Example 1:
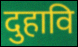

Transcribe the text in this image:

दुहावि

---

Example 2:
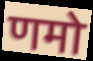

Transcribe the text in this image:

णमो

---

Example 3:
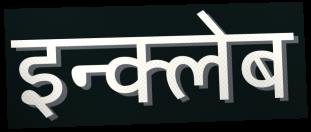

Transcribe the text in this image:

इन्क्लेब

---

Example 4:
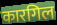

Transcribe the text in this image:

कारगिल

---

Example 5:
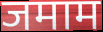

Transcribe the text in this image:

जमाम